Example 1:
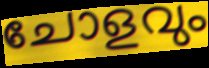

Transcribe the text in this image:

ചോളവും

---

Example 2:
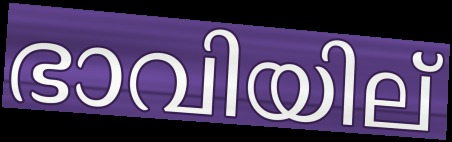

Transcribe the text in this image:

ഭാവിയില്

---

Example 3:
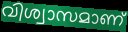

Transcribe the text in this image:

വിശ്വാസമാണ്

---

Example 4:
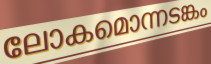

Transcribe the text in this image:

ലോകമൊന്നടങ്കം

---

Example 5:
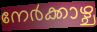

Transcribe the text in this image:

നേർക്കാഴ്ച